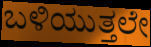
ಬಳಿಯುತ್ತಲೇ